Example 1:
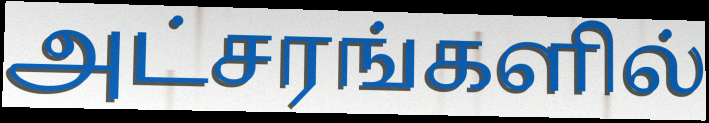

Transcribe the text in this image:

அட்சரங்களில்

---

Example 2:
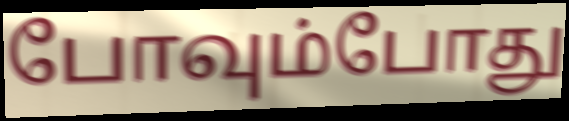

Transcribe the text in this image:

போவும்போது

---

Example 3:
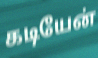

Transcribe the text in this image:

கடியேன்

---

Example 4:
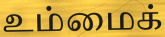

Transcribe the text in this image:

உம்மைக்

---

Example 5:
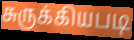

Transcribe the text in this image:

சுருக்கியபடி